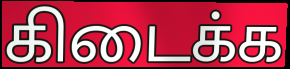
கிடைக்க